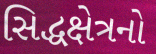
સિદ્ધક્ષેત્રનો